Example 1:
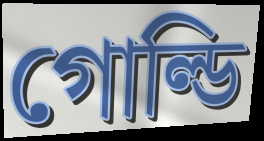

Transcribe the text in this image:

গোল্ডি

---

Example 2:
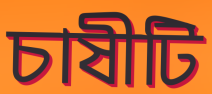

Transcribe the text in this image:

চাষীটি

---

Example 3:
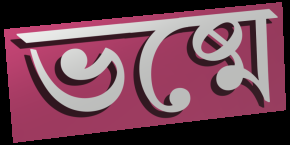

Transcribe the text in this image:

ভষ্মে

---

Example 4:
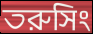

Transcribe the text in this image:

তরুসিং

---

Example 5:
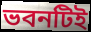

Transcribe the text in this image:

ভবনটিই